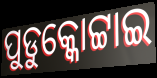
ପୁଡୁକ୍କୋଟ୍ଟାଇ